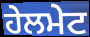
ਹੇਲਮੇਟ